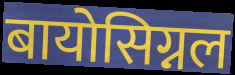
बायोसिग्नल